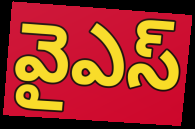
వైఎస్